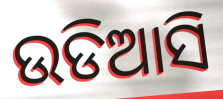
ଉଡିଆସି